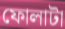
ফোলাটা